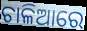
ଚାଳିଆରେ